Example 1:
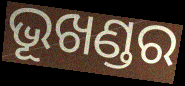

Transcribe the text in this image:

ଭୂଖଣ୍ଡର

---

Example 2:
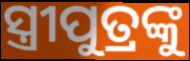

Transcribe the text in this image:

ସ୍ତ୍ରୀପୁତ୍ରଙ୍କୁ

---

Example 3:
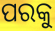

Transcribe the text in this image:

ପରକୁ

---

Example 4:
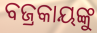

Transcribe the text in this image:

ବଜ୍ରକାୟଙ୍କୁ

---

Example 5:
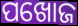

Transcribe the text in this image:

ପଖୋଜ